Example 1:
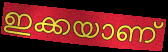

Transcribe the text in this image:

ഇക്കയാണ്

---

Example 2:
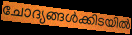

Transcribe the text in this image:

ചോദ്യങ്ങൾക്കിടയിൽ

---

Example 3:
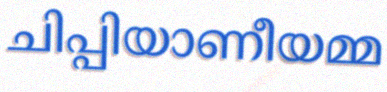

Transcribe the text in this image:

ചിപ്പിയാണീയമ്മ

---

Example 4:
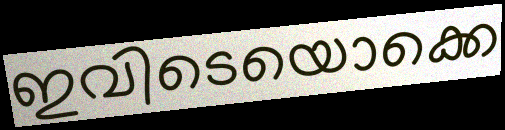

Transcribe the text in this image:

ഇവിടെയൊക്കെ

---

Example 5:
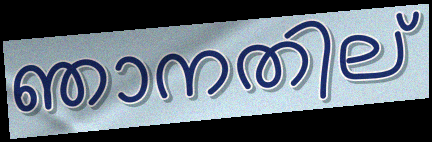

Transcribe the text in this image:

ഞാനതില്